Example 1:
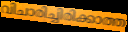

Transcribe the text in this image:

വിചാരിച്ചിരിക്കാത്ത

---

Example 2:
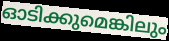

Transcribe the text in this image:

ഓടിക്കുമെങ്കിലും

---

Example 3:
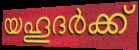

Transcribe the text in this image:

യഹൂദർക്ക്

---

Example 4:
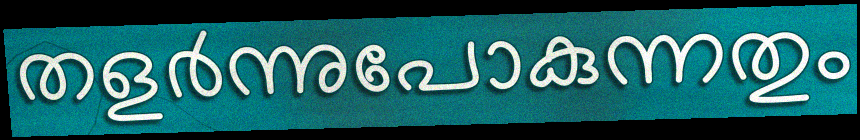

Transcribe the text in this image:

തളർന്നുപോകുന്നതും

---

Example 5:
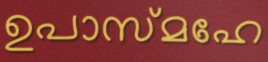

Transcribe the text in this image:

ഉപാസ്മഹേ